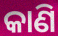
କାଣି